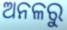
ଅନଳରୁ